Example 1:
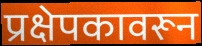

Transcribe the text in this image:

प्रक्षेपकावरून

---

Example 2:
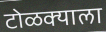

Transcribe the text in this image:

टोळक्याला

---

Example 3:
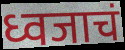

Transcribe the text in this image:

ध्वजाचं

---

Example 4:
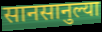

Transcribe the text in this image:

सानसानुल्या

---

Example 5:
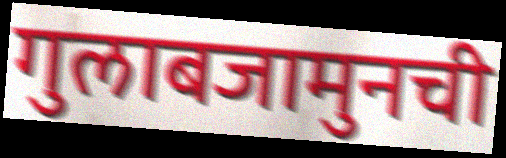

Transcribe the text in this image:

गुलाबजामुनची